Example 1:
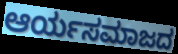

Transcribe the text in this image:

ಆರ್ಯಸಮಾಜದ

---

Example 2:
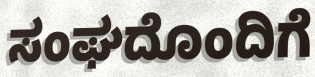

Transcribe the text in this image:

ಸಂಘದೊಂದಿಗೆ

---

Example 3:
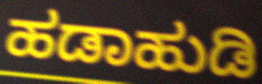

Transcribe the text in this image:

ಹಡಾಹುಡಿ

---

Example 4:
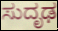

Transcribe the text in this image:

ಸುದೃಢ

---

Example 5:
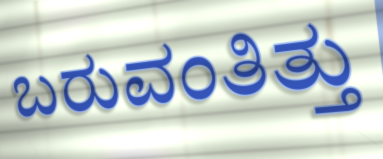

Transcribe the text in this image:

ಬರುವಂತಿತ್ತು